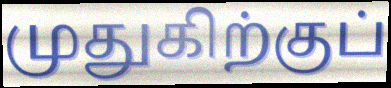
முதுகிற்குப்